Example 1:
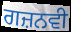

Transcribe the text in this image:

ਗਜ਼ਨਵੀ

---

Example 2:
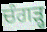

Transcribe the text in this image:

ਚੰਗੜ੍ਹ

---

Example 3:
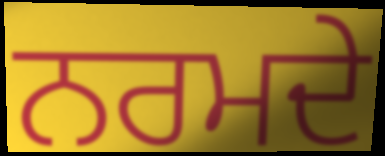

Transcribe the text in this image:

ਨਰਮਦੇ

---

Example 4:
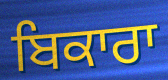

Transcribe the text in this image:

ਬਿਕਾਰਾ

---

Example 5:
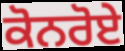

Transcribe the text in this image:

ਕੋਨਰੋਏ